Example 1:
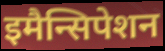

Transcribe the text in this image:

इमैन्सिपेशन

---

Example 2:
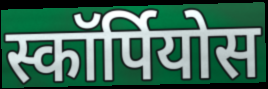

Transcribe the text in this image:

स्कॉर्पियोस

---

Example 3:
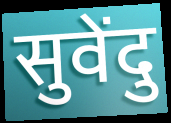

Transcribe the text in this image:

सुवेंदु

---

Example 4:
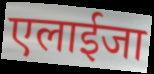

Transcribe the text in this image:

एलाईजा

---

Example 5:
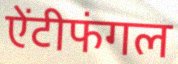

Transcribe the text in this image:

ऐंटीफंगल